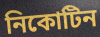
নিকোটিন